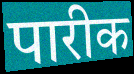
पारीक